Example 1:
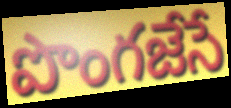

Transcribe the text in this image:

పొంగజేసే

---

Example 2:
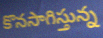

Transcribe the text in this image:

కొనసాగిస్తున్న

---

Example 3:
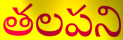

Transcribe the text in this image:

తలపని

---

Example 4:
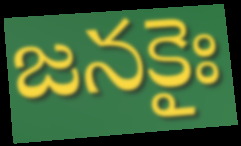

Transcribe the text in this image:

జనకైః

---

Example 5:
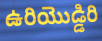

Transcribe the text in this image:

ఉరియొడ్డిరి